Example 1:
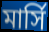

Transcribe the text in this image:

মার্সি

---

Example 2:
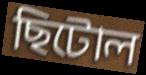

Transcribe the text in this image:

ছিটোল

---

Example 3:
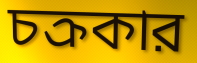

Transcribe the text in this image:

চক্রকার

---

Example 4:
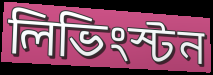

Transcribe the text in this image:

লিভিংস্টন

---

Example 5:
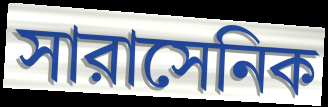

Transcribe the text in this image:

সারাসেনিক